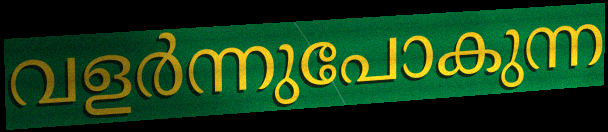
വളർന്നുപോകുന്ന